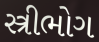
સ્ત્રીભોગ